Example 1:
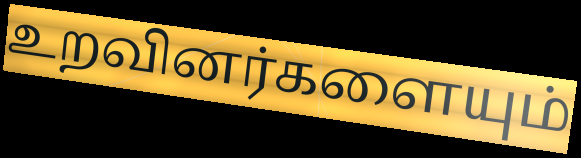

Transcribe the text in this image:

உறவினர்களையும்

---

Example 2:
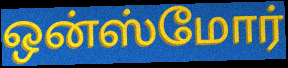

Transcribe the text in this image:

ஒன்ஸ்மோர்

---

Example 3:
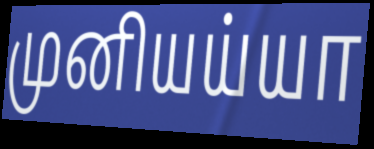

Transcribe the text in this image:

முனியய்யா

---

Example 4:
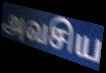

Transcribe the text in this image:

அவசிய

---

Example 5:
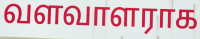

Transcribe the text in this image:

வளவாளராக